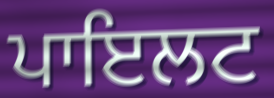
ਪਾਇਲਟ